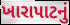
ખારાપાટનું